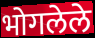
भोगलेले